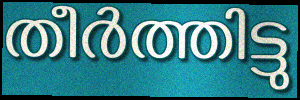
തീർത്തിട്ടു